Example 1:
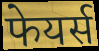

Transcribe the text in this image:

फेयर्स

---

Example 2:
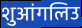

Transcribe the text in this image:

शुआंगलिउ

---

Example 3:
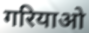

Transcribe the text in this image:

गरियाओ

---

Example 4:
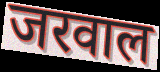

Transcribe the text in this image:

जरवाल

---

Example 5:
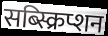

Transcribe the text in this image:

सब्स्क्रिप्शन